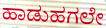
ಹಾಡುಹಗಲೇ